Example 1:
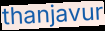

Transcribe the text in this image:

thanjavur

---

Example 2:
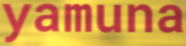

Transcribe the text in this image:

yamuna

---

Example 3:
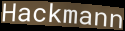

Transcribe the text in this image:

Hackmann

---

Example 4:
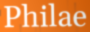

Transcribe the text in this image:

Philae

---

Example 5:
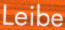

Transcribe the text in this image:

Leibe